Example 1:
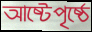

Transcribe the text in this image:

আষ্টেপৃষ্ঠে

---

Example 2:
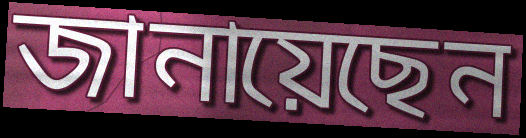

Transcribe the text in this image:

জানায়েছেন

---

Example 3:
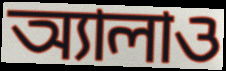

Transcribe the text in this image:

অ্যালাও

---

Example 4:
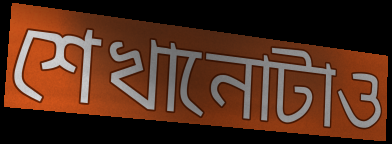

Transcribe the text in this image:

শেখানোটাও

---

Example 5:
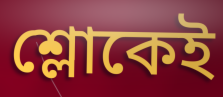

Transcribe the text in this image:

শ্লোকেই